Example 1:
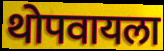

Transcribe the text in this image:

थोपवायला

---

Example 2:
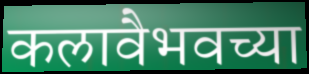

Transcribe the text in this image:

कलावैभवच्या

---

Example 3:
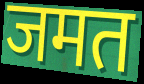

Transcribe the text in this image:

जमत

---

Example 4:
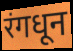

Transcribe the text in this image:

रंगधून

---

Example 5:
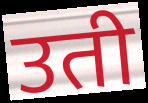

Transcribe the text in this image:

उती